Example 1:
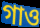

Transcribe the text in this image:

গাও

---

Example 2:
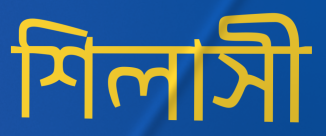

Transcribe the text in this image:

শিলাসী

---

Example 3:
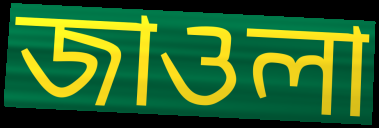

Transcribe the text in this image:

জাওলা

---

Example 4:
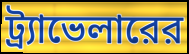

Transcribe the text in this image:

ট্র্যাভেলারের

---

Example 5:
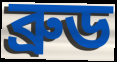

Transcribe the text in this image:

ব্রুড